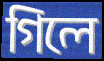
গিলে